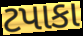
ટપાકા